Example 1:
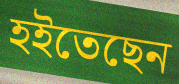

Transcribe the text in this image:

হইতেছেন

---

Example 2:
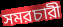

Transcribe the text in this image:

সমরচারী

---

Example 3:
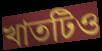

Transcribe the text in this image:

খাতটিও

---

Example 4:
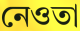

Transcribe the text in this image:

নেওতা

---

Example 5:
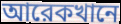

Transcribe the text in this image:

আরেকখানে